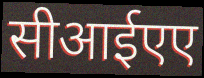
सीआईएए